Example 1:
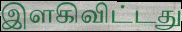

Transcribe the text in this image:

இளகிவிட்டது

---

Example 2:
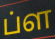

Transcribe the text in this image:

ப்ள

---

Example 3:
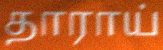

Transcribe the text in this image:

தாராய்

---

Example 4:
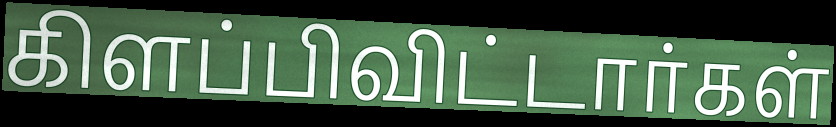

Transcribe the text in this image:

கிளப்பிவிட்டார்கள்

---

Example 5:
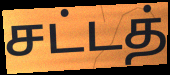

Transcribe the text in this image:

சட்டத்